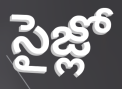
సైజ్లో